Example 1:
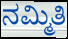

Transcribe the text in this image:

ನಮ್ಮಿತಿ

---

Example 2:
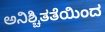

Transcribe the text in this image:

ಅನಿಶ್ಚಿತತೆಯಿಂದ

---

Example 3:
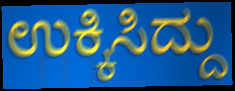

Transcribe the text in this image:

ಉಕ್ಕಿಸಿದ್ದು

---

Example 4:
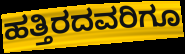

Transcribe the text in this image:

ಹತ್ತಿರದವರಿಗೂ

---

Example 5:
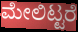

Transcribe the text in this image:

ಮೇಲಿಟ್ಟರೆ